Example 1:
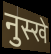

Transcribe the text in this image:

नुस्खे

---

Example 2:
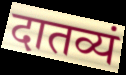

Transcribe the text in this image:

दातव्यं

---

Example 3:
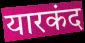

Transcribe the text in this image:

यारकंद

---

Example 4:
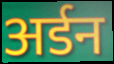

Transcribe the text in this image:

अर्डन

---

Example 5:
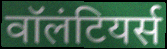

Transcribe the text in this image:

वॉलंटियर्स